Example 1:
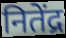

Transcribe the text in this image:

नितेंद्र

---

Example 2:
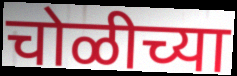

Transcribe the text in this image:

चोळीच्या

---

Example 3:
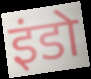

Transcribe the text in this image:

इंडो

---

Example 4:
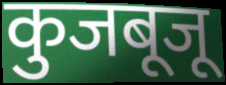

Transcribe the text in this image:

कुजबूजू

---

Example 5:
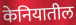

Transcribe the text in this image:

केनियातील